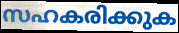
സഹകരിക്കുക